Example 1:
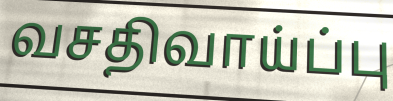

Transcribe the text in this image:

வசதிவாய்ப்பு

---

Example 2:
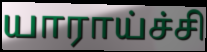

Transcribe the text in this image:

யாராய்ச்சி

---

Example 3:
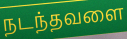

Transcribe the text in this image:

நடந்தவளை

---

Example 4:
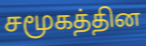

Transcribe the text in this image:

சமூகத்தின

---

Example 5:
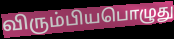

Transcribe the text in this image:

விரும்பியபொழுது